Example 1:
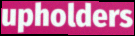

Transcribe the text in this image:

upholders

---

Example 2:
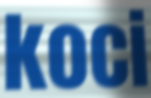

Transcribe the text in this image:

koci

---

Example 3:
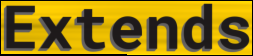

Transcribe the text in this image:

Extends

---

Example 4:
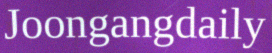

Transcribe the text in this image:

Joongangdaily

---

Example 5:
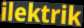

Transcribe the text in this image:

ilektrik